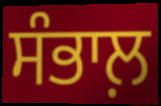
ਸੰਭਾਲ਼